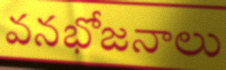
వనభోజనాలు